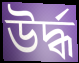
উৰ্দ্ধ